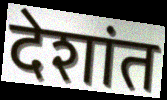
देशांत